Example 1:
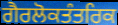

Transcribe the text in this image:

ਗੈਰਲੋਕਤੰਤਰਿਕ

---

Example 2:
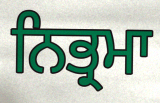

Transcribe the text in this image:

ਨਿਭ੍ਰਮਾ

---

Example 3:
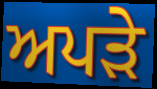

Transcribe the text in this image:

ਅਪੜੇ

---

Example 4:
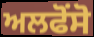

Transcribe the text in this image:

ਅਲਫੋਂਸੋ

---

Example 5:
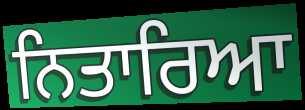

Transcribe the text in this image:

ਨਿਤਾਰਿਆ